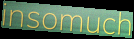
insomuch